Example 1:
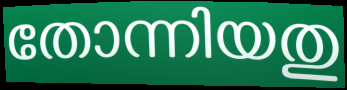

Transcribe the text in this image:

തോന്നിയതു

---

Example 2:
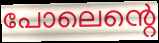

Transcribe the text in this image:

പോലെന്റെ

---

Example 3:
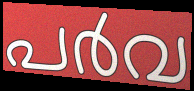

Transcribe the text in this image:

പർവ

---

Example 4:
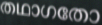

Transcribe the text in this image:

തഥാഗതോ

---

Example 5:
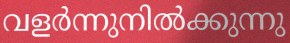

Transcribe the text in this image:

വളർന്നുനിൽക്കുന്നു